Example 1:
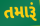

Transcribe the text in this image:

તમારૂં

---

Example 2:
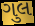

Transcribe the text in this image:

ગુલ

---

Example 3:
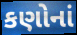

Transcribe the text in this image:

કણોનાં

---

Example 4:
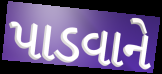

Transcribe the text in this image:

પાડવાને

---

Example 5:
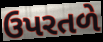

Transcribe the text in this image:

ઉપરતળે